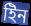
ইিন